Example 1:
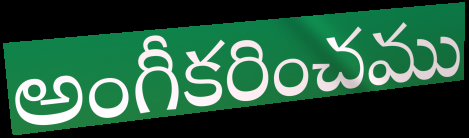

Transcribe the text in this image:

అంగీకరించము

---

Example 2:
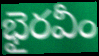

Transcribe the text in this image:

భైరవీం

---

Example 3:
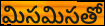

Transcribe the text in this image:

మిసమిసతో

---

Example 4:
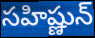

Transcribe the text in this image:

సహిష్ణున్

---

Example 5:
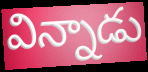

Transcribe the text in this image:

విన్నాడు